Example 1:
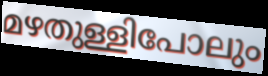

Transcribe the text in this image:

മഴതുള്ളിപോലും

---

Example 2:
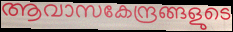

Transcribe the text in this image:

ആവാസകേന്ദ്രങ്ങളുടെ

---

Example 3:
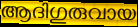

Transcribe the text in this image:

ആദിഗുരുവായ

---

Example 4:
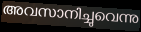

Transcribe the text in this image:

അവസാനിച്ചുവെന്നു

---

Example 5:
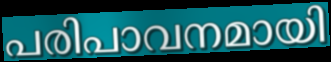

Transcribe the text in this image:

പരിപാവനമായി